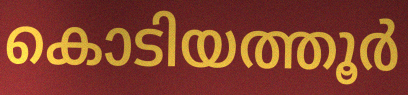
കൊടിയത്തൂർ